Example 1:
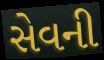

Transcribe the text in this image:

સેવની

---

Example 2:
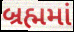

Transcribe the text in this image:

બ્રહ્મમાં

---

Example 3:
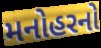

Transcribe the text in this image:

મનોહરનો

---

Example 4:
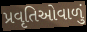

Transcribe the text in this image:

પ્રવૃતિઓવાળું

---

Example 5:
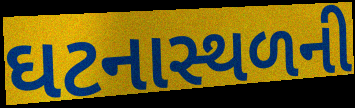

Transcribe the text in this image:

ઘટનાસ્થળની